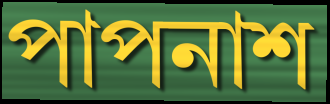
পাপনাশ